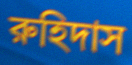
রুহিদাস